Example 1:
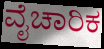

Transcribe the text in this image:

ವೈಚಾರಿಕ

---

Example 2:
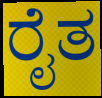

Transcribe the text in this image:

ರೈತ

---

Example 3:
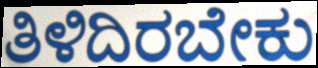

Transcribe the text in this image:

ತಿಳಿದಿರಬೇಕು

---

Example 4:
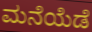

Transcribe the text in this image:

ಮನೆಯೆಡೆ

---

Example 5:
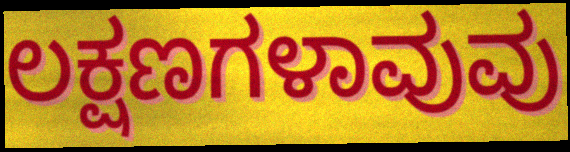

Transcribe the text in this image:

ಲಕ್ಷಣಗಳಾವುವು